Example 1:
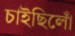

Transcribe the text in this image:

চাইছিলোঁ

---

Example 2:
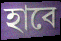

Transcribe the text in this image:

হাবে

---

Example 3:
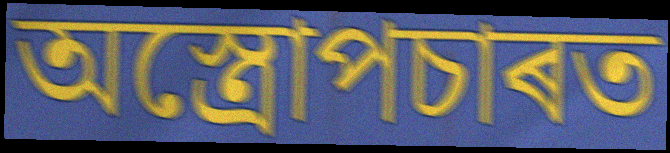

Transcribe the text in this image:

অস্ত্ৰোপচাৰত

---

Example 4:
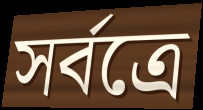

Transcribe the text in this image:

সৰ্বত্ৰে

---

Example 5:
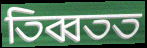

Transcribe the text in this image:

তিব্বতত